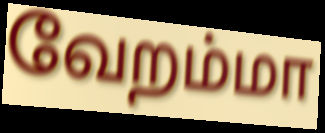
வேறம்மா